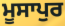
ਮੂਸਾਪੁਰ